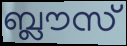
ബ്ലൗസ്